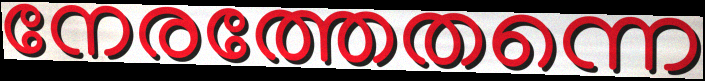
നേരത്തേതന്നെ